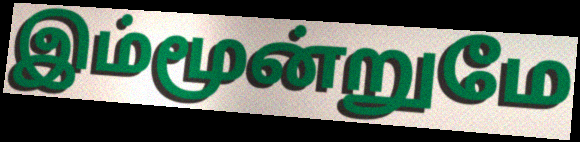
இம்மூன்றுமே